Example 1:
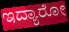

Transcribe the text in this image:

ಇದ್ಯಾರೋ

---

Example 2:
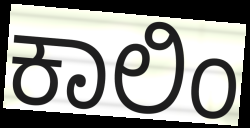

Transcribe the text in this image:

ಕಾಲಿಂ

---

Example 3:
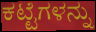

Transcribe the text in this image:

ಕಟ್ಟೆಗಳನ್ನು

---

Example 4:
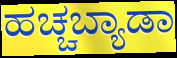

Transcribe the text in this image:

ಹಚ್ಚಬ್ಯಾಡಾ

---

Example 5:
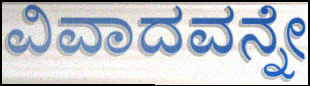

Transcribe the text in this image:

ವಿವಾದವನ್ನೇ